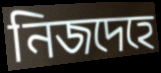
নিজদেহে